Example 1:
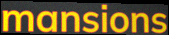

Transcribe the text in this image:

mansions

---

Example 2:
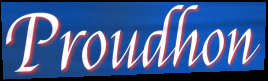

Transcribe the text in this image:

Proudhon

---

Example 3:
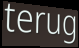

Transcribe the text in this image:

terug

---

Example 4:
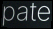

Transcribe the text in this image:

pate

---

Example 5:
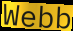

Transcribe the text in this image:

Webb